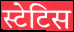
स्टेटिस